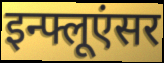
इन्फ्लूएंसर